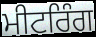
ਮੀਟਰਿੰਗ